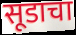
सूडाचा